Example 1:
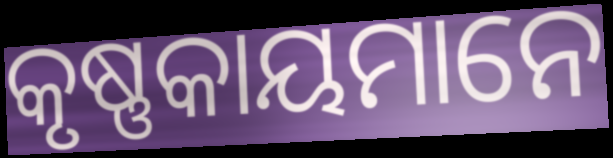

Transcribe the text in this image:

କୃଷ୍ଣକାୟମାନେ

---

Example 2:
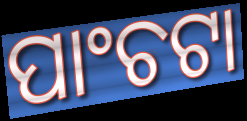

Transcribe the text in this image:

ପାଂଚଟା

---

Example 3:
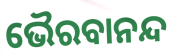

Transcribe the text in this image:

ଭୈରବାନନ୍ଦ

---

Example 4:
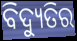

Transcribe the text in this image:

ବିଦ୍ୟୁତିର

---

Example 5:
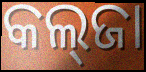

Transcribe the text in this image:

କଲ୍‌ଜା